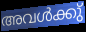
അവൾക്കു്